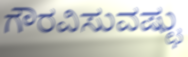
ಗೌರವಿಸುವಷ್ಟು